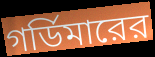
গর্ডিমারের